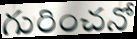
గురించనో